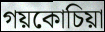
গয়কোচিয়া